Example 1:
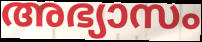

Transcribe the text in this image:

അഭ്യാസം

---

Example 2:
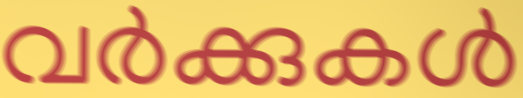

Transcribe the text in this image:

വർക്കുകൾ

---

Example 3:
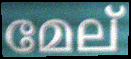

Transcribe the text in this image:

മേല്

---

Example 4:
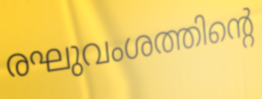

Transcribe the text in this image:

രഘുവംശത്തിന്റെ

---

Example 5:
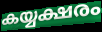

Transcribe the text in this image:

കയ്യക്ഷരം